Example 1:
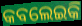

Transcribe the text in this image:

କବଲେଇକି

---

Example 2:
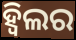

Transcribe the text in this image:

ହ୍ଵିଲର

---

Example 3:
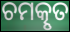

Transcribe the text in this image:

ଚମତ୍କୃତ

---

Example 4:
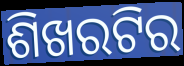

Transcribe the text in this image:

ଶିଖରଟିର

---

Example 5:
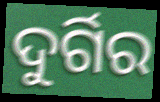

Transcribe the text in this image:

ଦୁର୍ଗିର